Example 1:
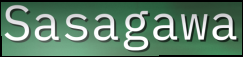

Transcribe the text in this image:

Sasagawa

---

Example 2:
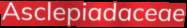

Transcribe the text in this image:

Asclepiadaceae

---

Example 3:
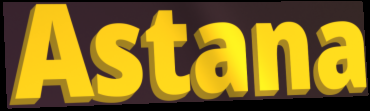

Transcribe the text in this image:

Astana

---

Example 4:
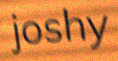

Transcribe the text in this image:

joshy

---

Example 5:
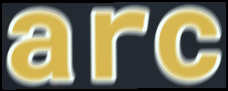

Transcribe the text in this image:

arc